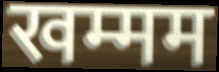
खम्मम